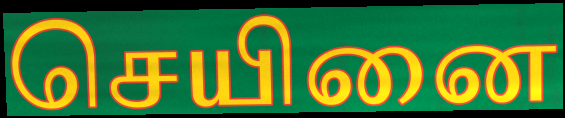
செயினை